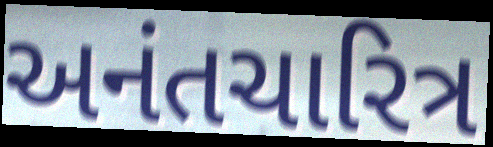
અનંતચારિત્ર